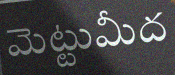
మెట్టుమీద